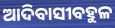
ଆଦିବାସୀବହୁଳ